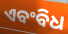
ଏବଂବିଧ